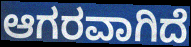
ಆಗರವಾಗಿದೆ